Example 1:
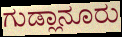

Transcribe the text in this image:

ಗುಡ್ಲಾನೂರು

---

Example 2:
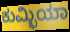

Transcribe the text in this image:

ಕುಮ್ಭಿಯಾ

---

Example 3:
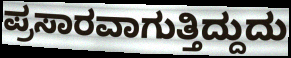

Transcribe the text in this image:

ಪ್ರಸಾರವಾಗುತ್ತಿದ್ದುದು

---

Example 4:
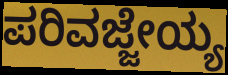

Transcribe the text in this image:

ಪರಿವಜ್ಜೇಯ್ಯ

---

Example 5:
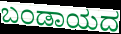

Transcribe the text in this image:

ಬಂಡಾಯದ